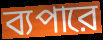
ব্যপারে